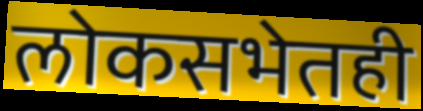
लोकसभेतही